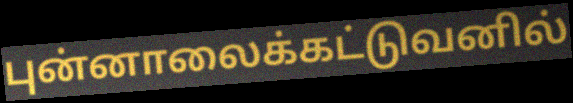
புன்னாலைக்கட்டுவனில்